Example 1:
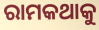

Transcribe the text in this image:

ରାମକଥାକୁ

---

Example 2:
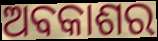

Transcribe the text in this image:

ଅବକାଶର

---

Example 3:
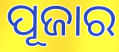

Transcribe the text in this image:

ପୂଜାର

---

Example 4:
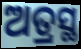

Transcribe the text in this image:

ଅତ୍ରସ୍ଥ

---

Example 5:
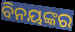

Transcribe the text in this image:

ବିନୟଙ୍କର